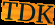
TDK